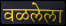
वळलेला